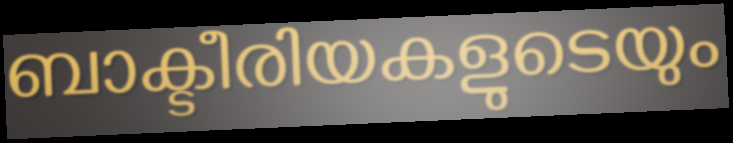
ബാക്ടീരിയകളുടെയും